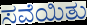
ಸವೆಯಿತು